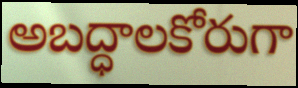
అబద్ధాలకోరుగా